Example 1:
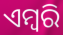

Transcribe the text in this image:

ଏମ୍ବରି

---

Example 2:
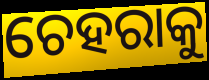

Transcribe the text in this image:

ଚେହରାକୁ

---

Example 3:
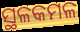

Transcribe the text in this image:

ସ୍ଥଳକମଳ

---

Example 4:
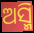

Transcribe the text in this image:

ଅସ୍ମି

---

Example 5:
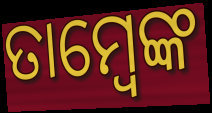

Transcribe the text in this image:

ତାମ୍ବେଙ୍କ